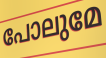
പോലുമേ